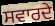
ਸਵਾਰਦੇ